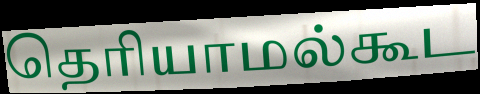
தெரியாமல்கூட